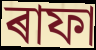
ৰাফা